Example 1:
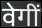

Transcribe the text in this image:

वेगीं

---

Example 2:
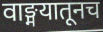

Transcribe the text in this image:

वाङ्मयातूनच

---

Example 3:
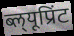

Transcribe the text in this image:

ब्ल्यूप्रिंट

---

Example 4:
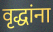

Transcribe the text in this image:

वृद्धांना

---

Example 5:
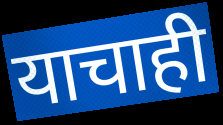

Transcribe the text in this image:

याचाही